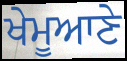
ਖੇਮੂਆਣੇ